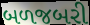
બળજબરી